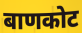
बाणकोट